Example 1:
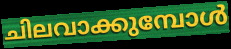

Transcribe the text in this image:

ചിലവാക്കുമ്പോൾ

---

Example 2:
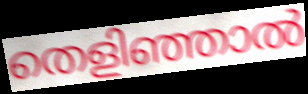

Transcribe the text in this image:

തെളിഞ്ഞാൽ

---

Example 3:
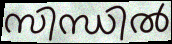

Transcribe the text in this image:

സിന്ധിൽ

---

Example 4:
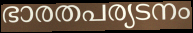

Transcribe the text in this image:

ഭാരതപര്യടനം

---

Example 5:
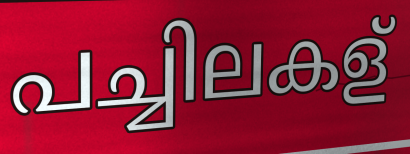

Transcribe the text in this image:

പച്ചിലകള്